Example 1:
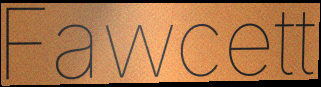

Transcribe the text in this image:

Fawcett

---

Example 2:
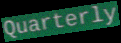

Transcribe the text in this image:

Quarterly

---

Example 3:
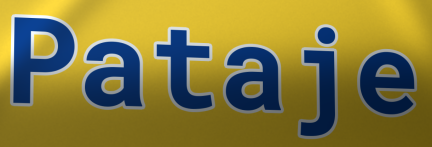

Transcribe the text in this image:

Pataje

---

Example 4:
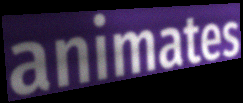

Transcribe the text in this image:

animates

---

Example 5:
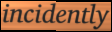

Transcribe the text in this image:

incidently